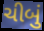
ચીબું